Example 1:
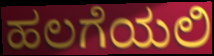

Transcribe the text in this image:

ಹಲಗೆಯಲಿ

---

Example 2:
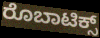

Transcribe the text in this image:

ರೊಬಾಟಿಕ್ಸ್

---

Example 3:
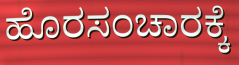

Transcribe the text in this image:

ಹೊರಸಂಚಾರಕ್ಕೆ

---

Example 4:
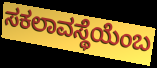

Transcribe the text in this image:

ಸಕಲಾವಸ್ಥೆಯೆಂಬ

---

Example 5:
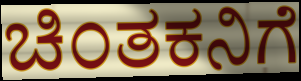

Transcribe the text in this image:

ಚಿಂತಕನಿಗೆ